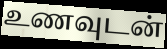
உணவுடன்